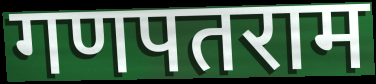
गणपतराम